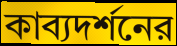
কাব্যদর্শনের